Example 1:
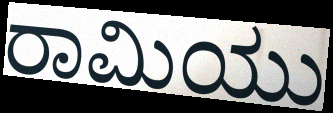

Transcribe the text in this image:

ರಾಮಿಯು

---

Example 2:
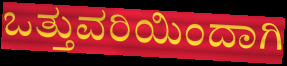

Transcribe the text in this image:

ಒತ್ತುವರಿಯಿಂದಾಗಿ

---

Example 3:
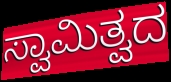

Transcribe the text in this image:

ಸ್ವಾಮಿತ್ವದ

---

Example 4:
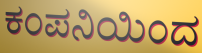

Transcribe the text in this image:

ಕಂಪನಿಯಿಂದ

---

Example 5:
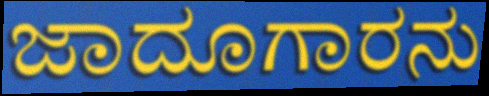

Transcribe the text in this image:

ಜಾದೂಗಾರನು